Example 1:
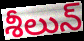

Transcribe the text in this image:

శీలున్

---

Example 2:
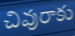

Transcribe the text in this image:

చివురాకు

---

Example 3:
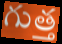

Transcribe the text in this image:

గుత్త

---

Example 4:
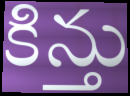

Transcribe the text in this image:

కిన్తు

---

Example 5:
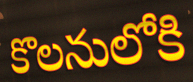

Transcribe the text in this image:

కొలనులోకి